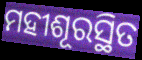
ମହୀଶୂରସ୍ଥିତ